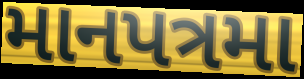
માનપત્રમા